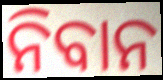
ନିବାନ